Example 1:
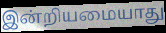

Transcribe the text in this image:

இன்றியமையாது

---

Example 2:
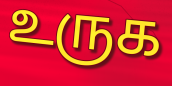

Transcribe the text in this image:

உருக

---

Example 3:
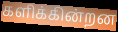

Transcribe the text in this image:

களிக்கின்றன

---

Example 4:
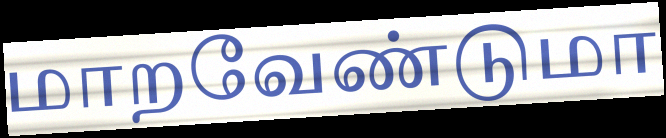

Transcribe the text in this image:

மாறவேண்டுமா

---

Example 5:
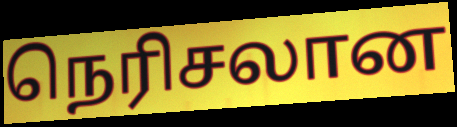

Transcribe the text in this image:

நெரிசலான